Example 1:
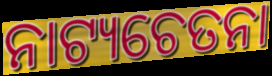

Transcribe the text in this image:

ନାଟ୍ୟଚେତନା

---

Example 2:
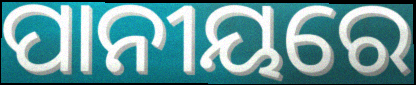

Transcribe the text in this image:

ପାନୀୟରେ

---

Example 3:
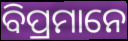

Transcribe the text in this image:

ବିପ୍ରମାନେ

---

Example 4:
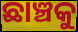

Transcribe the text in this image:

ଛାଞ୍ଚକୁ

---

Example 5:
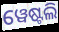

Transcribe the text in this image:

ୱେଷ୍ଟଲି